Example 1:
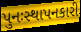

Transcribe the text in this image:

પુનઃસ્થાપનકારી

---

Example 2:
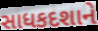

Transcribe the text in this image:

સાધકદશાને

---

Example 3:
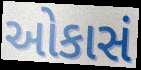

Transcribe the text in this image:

ઓકાસં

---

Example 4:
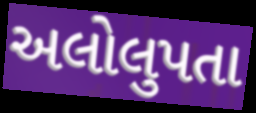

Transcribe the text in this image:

અલોલુપતા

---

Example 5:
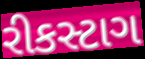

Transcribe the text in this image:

રીકસ્ટાગ